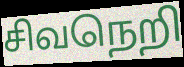
சிவநெறி